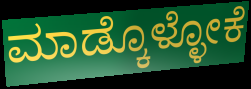
ಮಾಡ್ಕೊಳ್ಳೋಕೆ